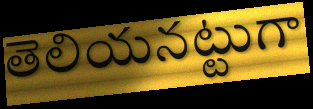
తెలియనట్టుగా